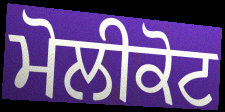
ਮੋਲੀਕੋਟ